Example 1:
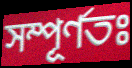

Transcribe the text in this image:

সম্পূর্ণতঃ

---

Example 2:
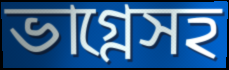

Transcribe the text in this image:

ভাগ্নেসহ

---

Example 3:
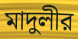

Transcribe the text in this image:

মাদুলীর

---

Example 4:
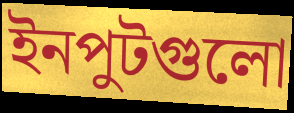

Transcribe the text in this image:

ইনপুটগুলো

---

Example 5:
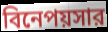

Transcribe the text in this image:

বিনেপয়সার